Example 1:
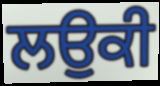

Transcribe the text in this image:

ਲਉਕੀ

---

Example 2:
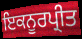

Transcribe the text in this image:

ਇਕਨੂਰਪ੍ਰੀਤ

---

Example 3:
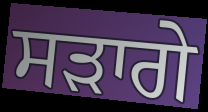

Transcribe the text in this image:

ਸੜਾਗੇ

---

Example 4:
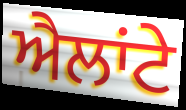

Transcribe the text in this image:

ਐਲਾਂਟੇ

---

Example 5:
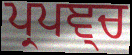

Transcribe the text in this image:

ਪ੍ਰਪਞ੍ਚ